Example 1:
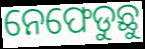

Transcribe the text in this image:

ନେଫେଡୁଛୁ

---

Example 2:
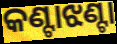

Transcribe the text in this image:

କଣ୍ଟାଝଣ୍ଟା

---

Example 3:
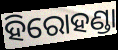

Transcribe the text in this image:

ହିରୋହଣ୍ଡା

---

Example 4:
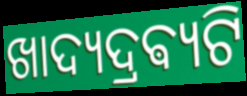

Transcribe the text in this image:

ଖାଦ୍ୟଦ୍ରଵ୍ୟଟି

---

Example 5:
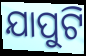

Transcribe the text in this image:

ଯାପୁଟି